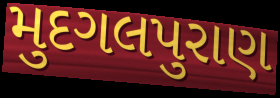
મુદગલપુરાણ